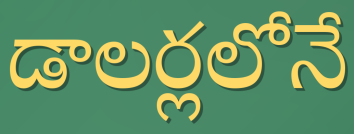
డాలర్లలోనే